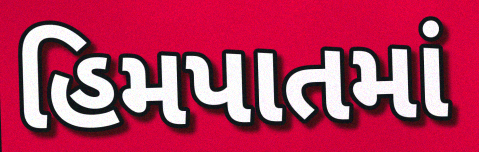
હિમપાતમાં